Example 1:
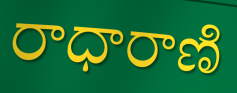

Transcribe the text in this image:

రాధారాణి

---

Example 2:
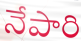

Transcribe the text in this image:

నేపారి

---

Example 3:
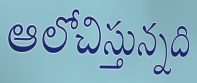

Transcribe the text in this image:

ఆలోచిస్తున్నది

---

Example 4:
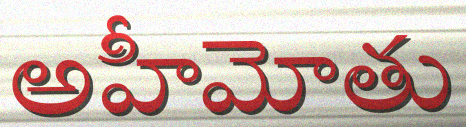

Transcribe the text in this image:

అహీమోతు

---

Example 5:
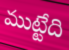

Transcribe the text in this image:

ముట్టేది